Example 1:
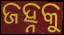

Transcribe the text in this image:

ଜହ୍ନକୁ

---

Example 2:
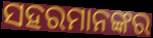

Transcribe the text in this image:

ସହରମାନଙ୍କର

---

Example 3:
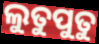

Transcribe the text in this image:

ଲୁତୁପୁତୁ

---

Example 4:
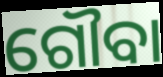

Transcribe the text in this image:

ଗୌବା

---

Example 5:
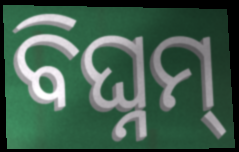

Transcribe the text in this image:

ବିଘ୍ନମ୍